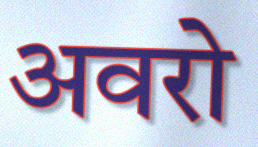
अवरो